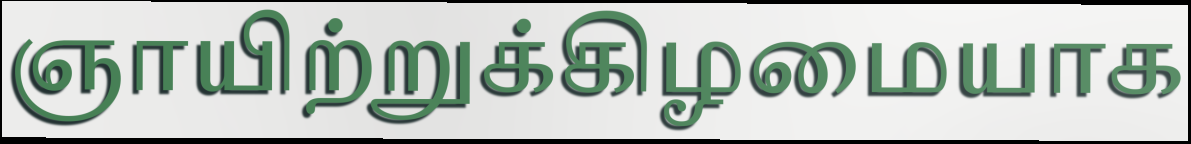
ஞாயிற்றுக்கிழமையாக